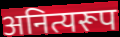
अनित्यरूप